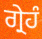
ਗ੍ਰੇਹੰ